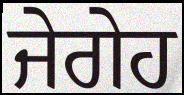
ਜੇਗੇਹ